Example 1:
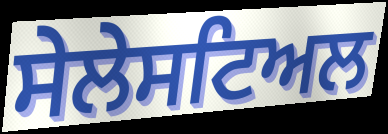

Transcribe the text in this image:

ਸੇਲੇਸਟਿਅਲ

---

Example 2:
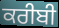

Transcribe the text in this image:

ਕਰੀਬੀ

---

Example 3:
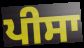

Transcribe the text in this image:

ਪੀਸਾ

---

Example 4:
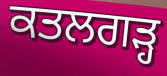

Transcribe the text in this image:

ਕਤਲਗੜ੍ਹ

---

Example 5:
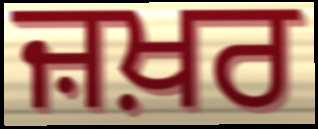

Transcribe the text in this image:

ਜ਼ਖ਼ਰ